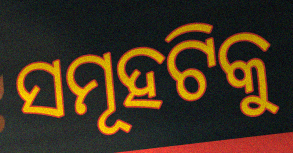
ସମୂହଟିକୁ